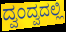
ದ್ವಂದ್ವದಲ್ಲಿ